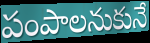
పంపాలనుకునే